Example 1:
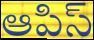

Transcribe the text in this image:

ఆపిస్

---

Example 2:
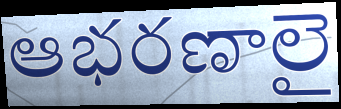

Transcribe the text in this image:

ఆభరణాలై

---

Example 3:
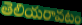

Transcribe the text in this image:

తెలియరావటం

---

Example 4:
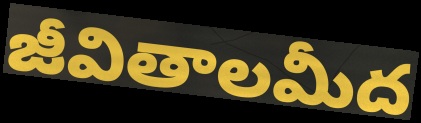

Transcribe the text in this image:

జీవితాలమీద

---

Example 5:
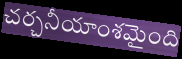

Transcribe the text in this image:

చర్చనీయాంశమైంది